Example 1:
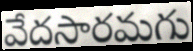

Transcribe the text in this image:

వేదసారమగు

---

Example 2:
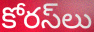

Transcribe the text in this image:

కోరస్‌లు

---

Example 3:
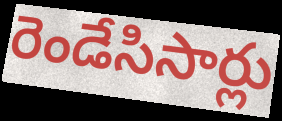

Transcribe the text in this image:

రెండేసిసార్లు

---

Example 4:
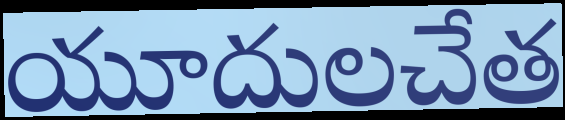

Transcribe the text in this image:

యూదులచేత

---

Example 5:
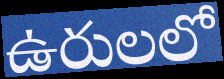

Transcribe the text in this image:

ఉరులలో